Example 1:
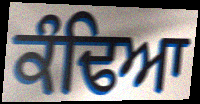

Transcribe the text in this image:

ਕੰਢਿਆ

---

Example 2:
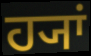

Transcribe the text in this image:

ਹ੍ਯਾਂ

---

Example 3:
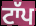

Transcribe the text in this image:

ਟਾੱਪ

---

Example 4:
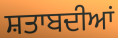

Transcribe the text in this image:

ਸ਼ਤਾਬਦੀਆਂ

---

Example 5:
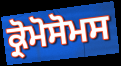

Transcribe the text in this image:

ਕ੍ਰੋਮੋਸੋਮਸ